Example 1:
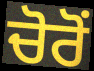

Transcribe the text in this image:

ਚੋਰੋਂ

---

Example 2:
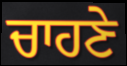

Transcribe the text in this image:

ਚਾਹਣੇ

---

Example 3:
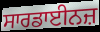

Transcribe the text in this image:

ਸਾਰਡਾਈਨਜ਼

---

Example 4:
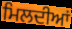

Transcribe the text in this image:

ਮਿਲਦੀਆਂ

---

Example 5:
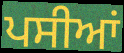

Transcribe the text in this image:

ਪਸੀਆਂ